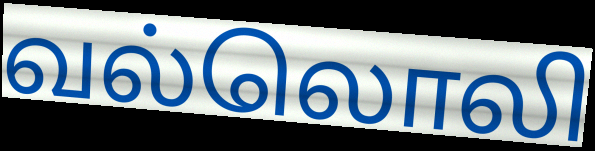
வல்லொலி